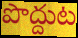
పొద్దుట